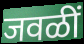
जवळीं